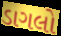
ડાગલો